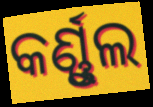
କର୍ଣ୍ଣୁଲ